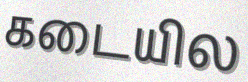
கடையில